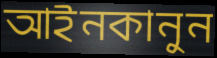
আইনকানুন